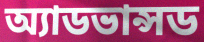
অ্যাডভান্সড